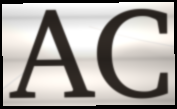
AC